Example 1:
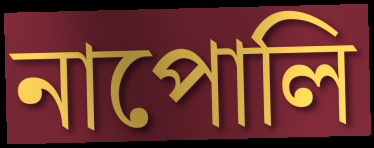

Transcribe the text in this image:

নাপোলি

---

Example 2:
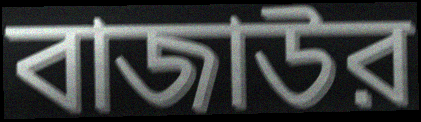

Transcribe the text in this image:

বাজাউর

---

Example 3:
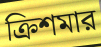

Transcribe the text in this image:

ক্রিশমার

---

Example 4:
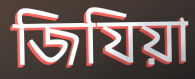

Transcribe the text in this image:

জিযিয়া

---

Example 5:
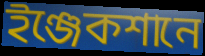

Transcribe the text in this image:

ইঞ্জেকশানে